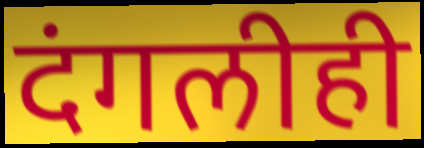
दंगलीही